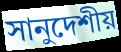
সানুদেশীয়